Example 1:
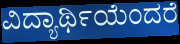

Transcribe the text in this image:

ವಿದ್ಯಾರ್ಥಿಯೆಂದರೆ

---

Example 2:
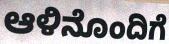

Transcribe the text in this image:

ಆಳಿನೊಂದಿಗೆ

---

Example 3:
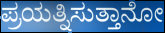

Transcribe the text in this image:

ಪ್ರಯತ್ನಿಸುತ್ತಾನೋ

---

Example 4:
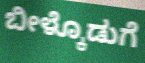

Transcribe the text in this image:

ಬೀಳ್ಕೊಡುಗೆ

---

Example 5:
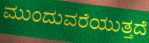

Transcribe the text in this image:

ಮುಂದುವರೆಯುತ್ತದೆ